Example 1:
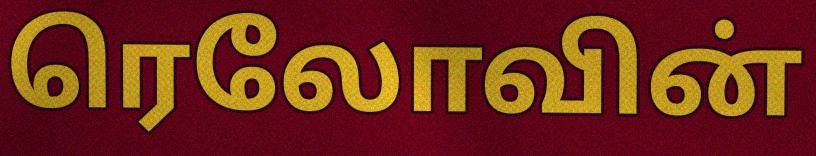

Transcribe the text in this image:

ரெலோவின்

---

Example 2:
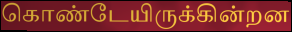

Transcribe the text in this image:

கொண்டேயிருக்கின்றன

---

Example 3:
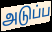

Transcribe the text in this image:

அடுப்ப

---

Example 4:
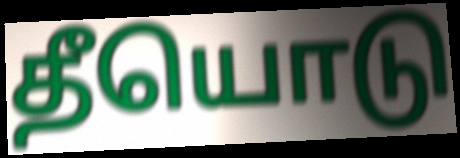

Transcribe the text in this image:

தீயொடு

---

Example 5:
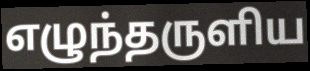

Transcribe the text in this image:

எழுந்தருளிய